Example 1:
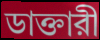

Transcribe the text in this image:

ডাক্তারী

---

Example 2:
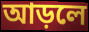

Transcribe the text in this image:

আড়লে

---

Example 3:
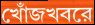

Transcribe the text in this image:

খোঁজখবরে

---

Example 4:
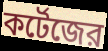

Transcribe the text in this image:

কর্টেজের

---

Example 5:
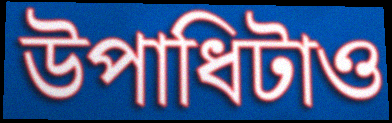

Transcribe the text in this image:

উপাধিটাও